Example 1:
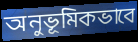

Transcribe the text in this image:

অনুভূমিকভাবে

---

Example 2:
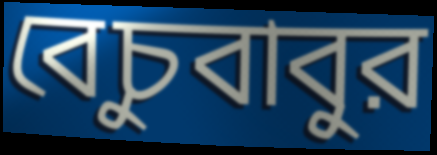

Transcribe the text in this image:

বেচুবাবুর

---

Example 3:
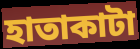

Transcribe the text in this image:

হাতাকাটা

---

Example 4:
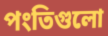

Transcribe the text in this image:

পংতিগুলো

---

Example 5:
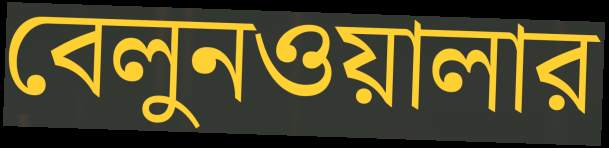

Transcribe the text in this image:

বেলুনওয়ালার